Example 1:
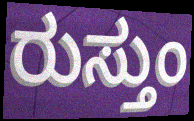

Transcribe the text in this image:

ರುಸ್ತುಂ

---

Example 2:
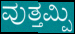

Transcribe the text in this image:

ವುತ್ತಮ್ಪಿ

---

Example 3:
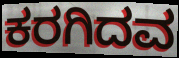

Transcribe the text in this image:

ಕರಗಿದವ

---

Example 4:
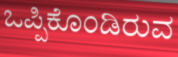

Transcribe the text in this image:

ಒಪ್ಪಿಕೊಂಡಿರುವ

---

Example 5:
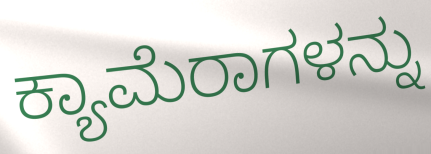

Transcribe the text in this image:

ಕ್ಯಾಮೆರಾಗಳನ್ನು